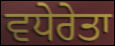
ਵਧੇਰੇਤਾ